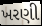
ખરણી